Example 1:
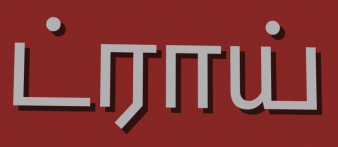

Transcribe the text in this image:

ட்ராய்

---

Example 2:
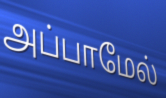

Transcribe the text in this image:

அப்பாமேல்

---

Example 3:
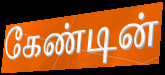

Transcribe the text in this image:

கேண்டின்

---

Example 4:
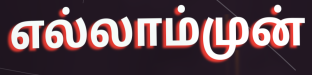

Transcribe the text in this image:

எல்லாம்முன்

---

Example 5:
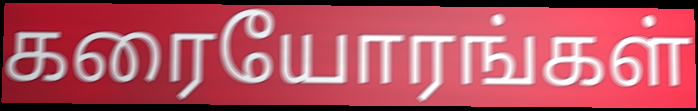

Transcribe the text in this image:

கரையோரங்கள்